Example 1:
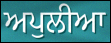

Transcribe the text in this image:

ਅਪੁਲੀਆ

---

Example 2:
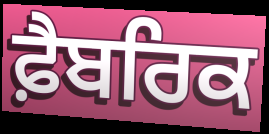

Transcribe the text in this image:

ਫ਼ੈਬਰਿਕ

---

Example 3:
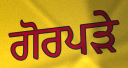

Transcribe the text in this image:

ਗੋਰਪੜੇ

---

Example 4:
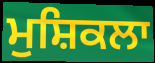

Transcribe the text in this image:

ਮੁਸ਼ਿਕਲਾ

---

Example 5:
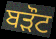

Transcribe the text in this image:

ਬੜੌਟ